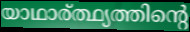
യാഥാര്ത്ഥ്യത്തിന്റെ